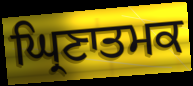
ਘ੍ਰਿਣਾਤਮਕ